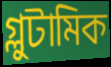
গ্লুটামিক